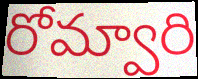
రోమ్వారి